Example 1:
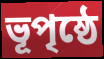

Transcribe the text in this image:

ভূপৃষ্ঠে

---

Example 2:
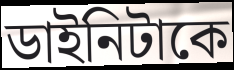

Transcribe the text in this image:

ডাইনিটাকে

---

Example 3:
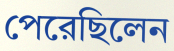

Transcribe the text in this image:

পেরেছিলেন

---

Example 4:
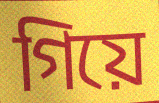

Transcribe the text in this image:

গিয়ে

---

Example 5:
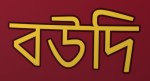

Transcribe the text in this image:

বউদি